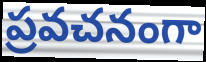
ప్రవచనంగా